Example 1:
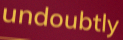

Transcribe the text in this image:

undoubtly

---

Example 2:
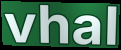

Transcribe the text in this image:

vhal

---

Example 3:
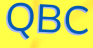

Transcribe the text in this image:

QBC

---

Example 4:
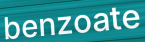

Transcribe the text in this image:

benzoate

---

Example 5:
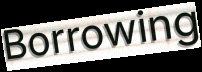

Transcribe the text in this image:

Borrowing